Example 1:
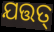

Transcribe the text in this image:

ଯତ୍ତତ୍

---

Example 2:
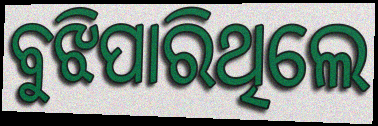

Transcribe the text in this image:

ବୁଝିପାରିଥିଲେ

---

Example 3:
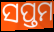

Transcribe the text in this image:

ସପ୍ତମ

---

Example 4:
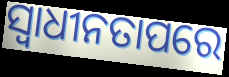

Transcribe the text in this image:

ସ୍ୱାଧୀନତାପରେ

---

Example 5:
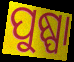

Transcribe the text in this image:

ପୁଷ୍ପା